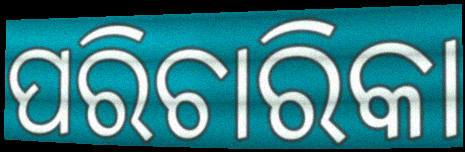
ପରିଚାରିକା